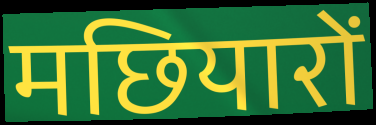
मछियारों